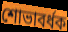
শোভাবর্ধক